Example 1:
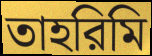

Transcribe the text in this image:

তাহরিমি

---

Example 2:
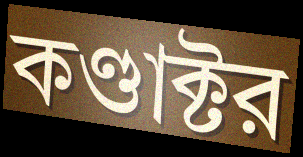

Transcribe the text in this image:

কণ্ডাক্টর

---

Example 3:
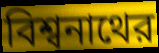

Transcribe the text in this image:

বিশ্বনাথের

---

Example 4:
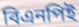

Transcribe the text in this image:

বিএনপিই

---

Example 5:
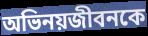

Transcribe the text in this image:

অভিনয়জীবনকে